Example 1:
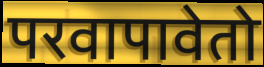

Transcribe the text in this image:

परवापावेतो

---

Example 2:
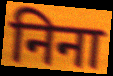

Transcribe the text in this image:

निना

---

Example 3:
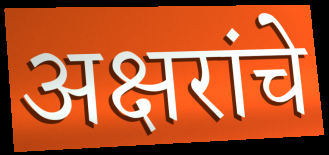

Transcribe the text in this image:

अक्षरांचे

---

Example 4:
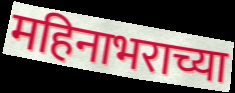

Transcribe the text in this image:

महिनाभराच्या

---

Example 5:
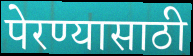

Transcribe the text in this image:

पेरण्यासाठी